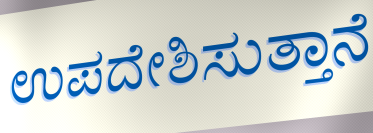
ಉಪದೇಶಿಸುತ್ತಾನೆ